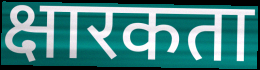
क्षारकता